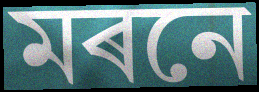
মৰনে